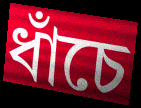
ধাঁচে